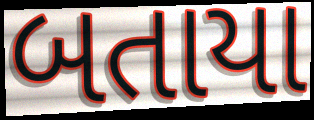
બતાયા